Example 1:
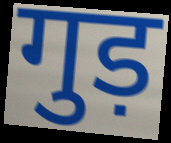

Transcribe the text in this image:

गुड़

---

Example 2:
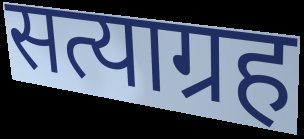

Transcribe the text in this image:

सत्याग्रह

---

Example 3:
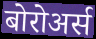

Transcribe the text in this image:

बोरोअर्स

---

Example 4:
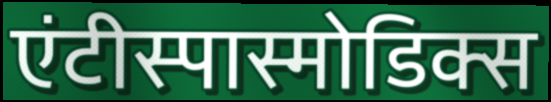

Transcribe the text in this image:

एंटीस्पास्मोडिक्स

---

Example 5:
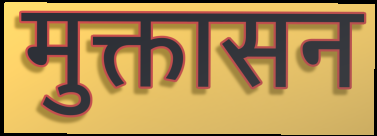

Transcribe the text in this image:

मुक्तासन